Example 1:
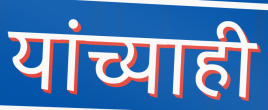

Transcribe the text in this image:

यांच्याही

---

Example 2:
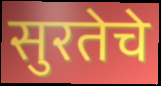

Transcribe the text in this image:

सुरतेचे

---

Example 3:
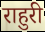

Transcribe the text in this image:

राहुरी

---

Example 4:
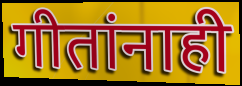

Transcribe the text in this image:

गीतांनाही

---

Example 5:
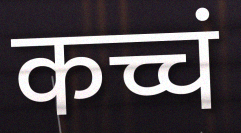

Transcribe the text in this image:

कच्चं